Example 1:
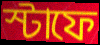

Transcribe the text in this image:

স্টাফে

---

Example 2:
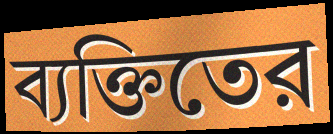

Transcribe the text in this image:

ব্যক্তিতের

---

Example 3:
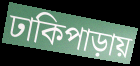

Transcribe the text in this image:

ঢাকিপাড়ায়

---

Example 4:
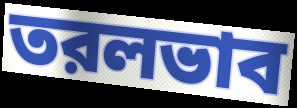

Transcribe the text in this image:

তরলভাব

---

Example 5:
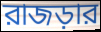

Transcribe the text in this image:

রাজড়ার